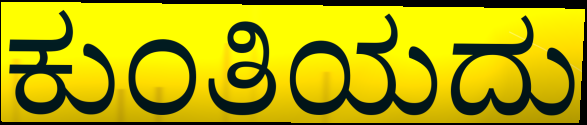
ಕುಂತಿಯದು